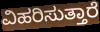
ವಿಹರಿಸುತ್ತಾರೆ